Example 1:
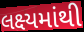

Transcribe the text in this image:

લક્ષ્યમાંથી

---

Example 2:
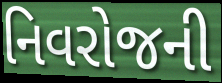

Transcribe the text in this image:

નિવરોજની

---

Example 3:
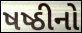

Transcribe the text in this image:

ષષ્ઠીનો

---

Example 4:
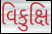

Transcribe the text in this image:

વિકુક્ષિ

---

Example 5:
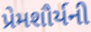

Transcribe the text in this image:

પ્રેમશૌર્યની